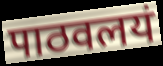
पाठवलयं